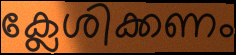
ക്ലേശിക്കണം